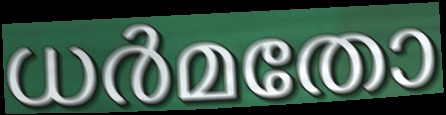
ധർമതോ